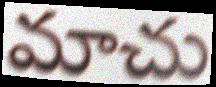
మాచు